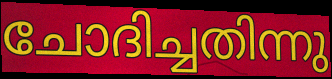
ചോദിച്ചതിന്നു